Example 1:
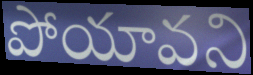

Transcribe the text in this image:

పోయావని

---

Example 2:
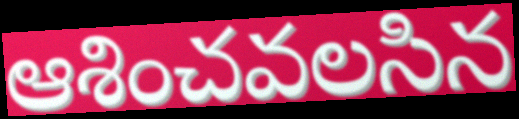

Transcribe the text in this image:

ఆశించవలసిన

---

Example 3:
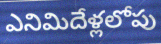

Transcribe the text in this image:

ఎనిమిదేళ్లలోపు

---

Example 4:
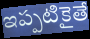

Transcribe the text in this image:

ఇప్పటికైతే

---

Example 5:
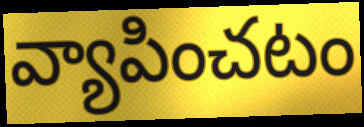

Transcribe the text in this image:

వ్యాపించటం